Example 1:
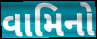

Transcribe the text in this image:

વામિનો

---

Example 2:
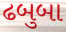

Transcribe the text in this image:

ઢબુબા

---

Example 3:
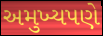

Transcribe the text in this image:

અમુખ્યપણે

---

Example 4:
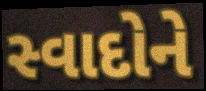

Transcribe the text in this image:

સ્વાદોને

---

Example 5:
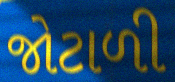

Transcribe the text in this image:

જોટાળી